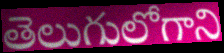
తెలుగులోగాని